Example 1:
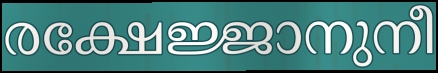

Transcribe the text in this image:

രക്ഷേജ്ജാനുനീ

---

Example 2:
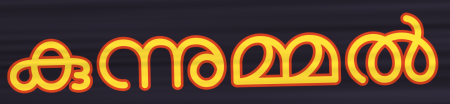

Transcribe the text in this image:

കുന്നുമ്മൽ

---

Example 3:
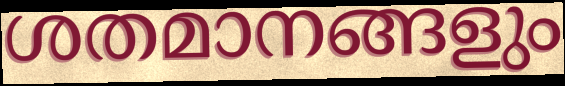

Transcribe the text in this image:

ശതമാനങ്ങളും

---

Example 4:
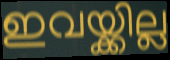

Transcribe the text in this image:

ഇവയ്ക്കില്ല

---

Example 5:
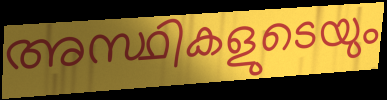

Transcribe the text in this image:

അസ്ഥികളുടെയും